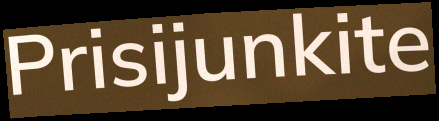
Prisijunkite